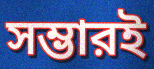
সম্ভারই